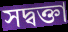
সদ্বক্তা